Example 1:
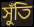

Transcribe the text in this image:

সুঁতি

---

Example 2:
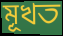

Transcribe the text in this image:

মূখত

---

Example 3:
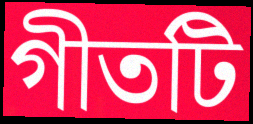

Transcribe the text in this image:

গীতটি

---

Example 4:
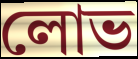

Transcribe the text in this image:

লোভ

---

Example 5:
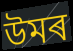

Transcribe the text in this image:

উমৰ